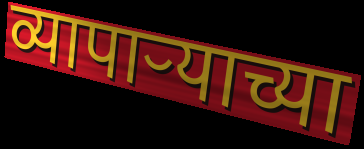
व्यापाऱ्याच्या